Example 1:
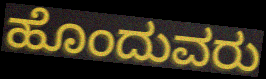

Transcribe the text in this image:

ಹೊಂದುವರು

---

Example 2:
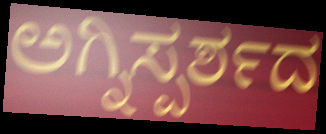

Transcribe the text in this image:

ಅಗ್ನಿಸ್ಪರ್ಶದ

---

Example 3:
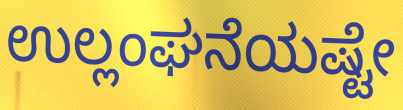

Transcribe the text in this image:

ಉಲ್ಲಂಘನೆಯಷ್ಟೇ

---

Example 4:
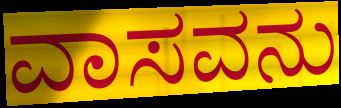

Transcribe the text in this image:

ವಾಸವನು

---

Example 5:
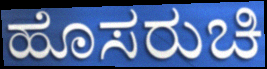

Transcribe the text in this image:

ಹೊಸರುಚಿ